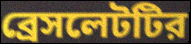
ব্রেসলেটটির